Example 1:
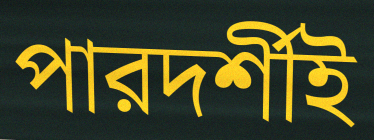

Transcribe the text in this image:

পারদর্শীই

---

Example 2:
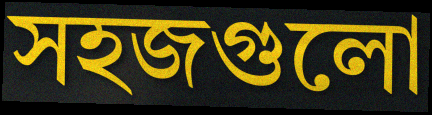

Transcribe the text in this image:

সহজগুলো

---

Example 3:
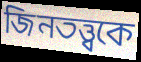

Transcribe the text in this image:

জিনতত্ত্বকে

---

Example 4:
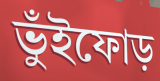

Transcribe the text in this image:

ভুঁইফোড়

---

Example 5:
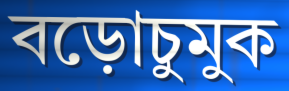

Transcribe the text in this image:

বড়োচুমুক